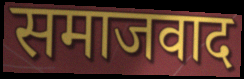
समाजवाद